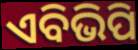
ଏବିଭିପି